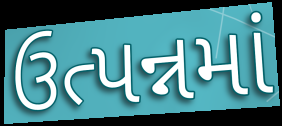
ઉત્પન્નમાં